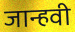
जान्‍हवी